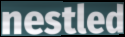
nestled